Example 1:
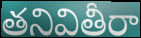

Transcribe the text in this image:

తనివితీరా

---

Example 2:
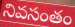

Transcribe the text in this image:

నివసంతం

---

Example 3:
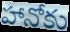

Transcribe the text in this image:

హానోకు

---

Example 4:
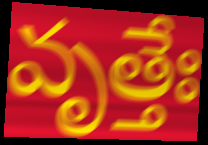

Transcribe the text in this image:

వృత్తేః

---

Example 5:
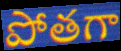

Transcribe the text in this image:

పోతగా